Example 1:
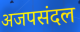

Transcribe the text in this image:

अजपसंदल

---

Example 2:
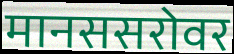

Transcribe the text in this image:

मानससरोवर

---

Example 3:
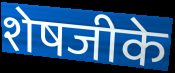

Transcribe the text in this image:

शेषजीके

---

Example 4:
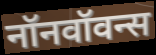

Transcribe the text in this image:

नॉनवॉवन्स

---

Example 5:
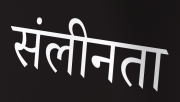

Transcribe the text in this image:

संलीनता